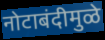
नोटाबंदीमुळे